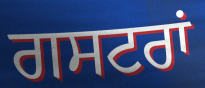
ਗਸਟਰਾਂ